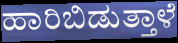
ಹಾರಿಬಿಡುತ್ತಾಳೆ